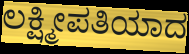
ಲಕ್ಷ್ಮೀಪತಿಯಾದ